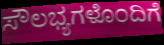
ಸೌಲಭ್ಯಗಳೊಂದಿಗೆ